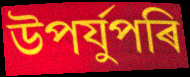
উপৰ্যুপৰি